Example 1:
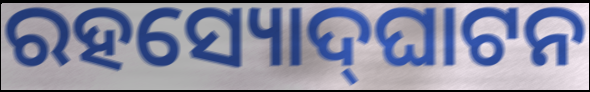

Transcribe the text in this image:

ରହସ୍ୟୋଦ୍‍ଘାଟନ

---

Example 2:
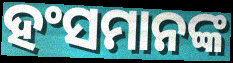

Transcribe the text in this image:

ହଂସମାନଙ୍କ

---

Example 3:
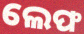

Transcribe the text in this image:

ଲେଫ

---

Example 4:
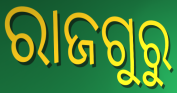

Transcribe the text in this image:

ରାଜଗୁରୁ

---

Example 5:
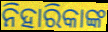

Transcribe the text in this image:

ନିହାରିକାଙ୍କ